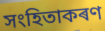
সংহিতাকৰণ